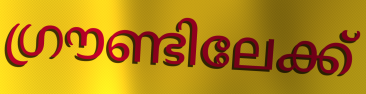
ഗ്രൗണ്ടിലേക്ക്